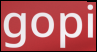
gopi